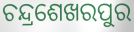
ଚନ୍ଦ୍ରଶେଖରପୁର